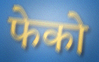
फेको